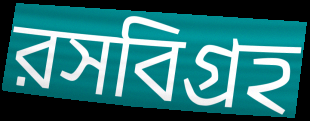
রসবিগ্রহ